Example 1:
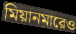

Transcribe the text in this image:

মিয়ানমারেও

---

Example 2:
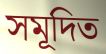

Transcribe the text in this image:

সমূদিত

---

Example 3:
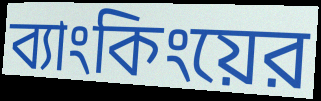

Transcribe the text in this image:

ব্যাংকিংয়ের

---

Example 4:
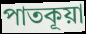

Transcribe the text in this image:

পাতকূয়া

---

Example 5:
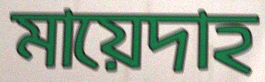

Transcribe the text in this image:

মায়েদাহ